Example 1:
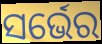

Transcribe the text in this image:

ସର୍ଭେର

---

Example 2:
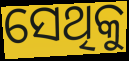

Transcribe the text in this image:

ସେଥିକୁ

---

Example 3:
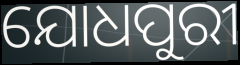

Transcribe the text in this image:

ଯୋଧପୁରୀ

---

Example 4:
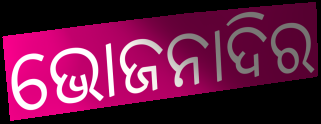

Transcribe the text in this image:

ଭୋଜନାଦିର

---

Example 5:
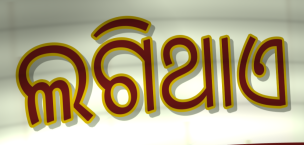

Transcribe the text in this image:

ଲଗିଥାଏ